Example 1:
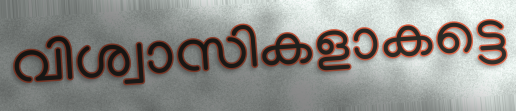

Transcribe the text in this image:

വിശ്വാസികളാകട്ടെ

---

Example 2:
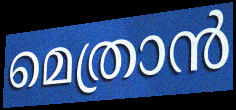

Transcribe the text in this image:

മെത്രാൻ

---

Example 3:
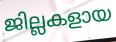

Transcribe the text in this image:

ജില്ലകളായ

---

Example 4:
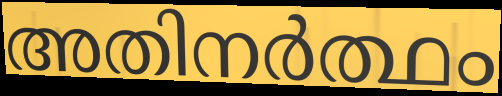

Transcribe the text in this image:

അതിനർത്ഥം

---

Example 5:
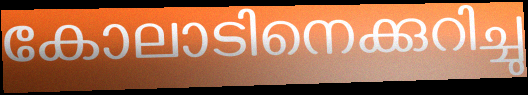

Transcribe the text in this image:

കോലാടിനെക്കുറിച്ചു